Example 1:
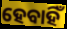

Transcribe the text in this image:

ହେବାହିଁ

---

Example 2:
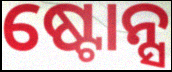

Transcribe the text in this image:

ଷ୍ଟୋନ୍ସ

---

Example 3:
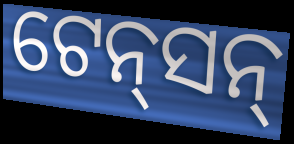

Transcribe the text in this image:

ଟେନ୍‌ସନ୍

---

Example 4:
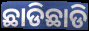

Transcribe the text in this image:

ଛାଡିଛାଡି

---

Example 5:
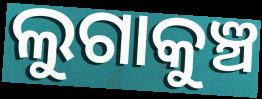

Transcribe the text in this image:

ଲୁଗାକୁଞ୍ଚ